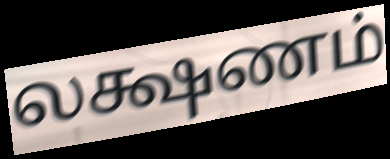
லக்ஷணம்